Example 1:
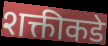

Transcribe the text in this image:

शक्तीकडे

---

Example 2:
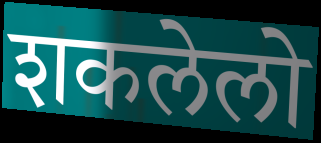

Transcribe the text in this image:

शकलेलो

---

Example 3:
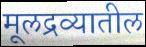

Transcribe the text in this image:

मूलद्रव्यातील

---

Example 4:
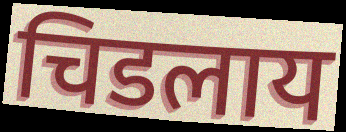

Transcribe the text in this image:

चिडलाय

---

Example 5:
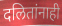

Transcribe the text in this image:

दलितांनाही